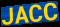
JACC